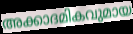
അക്കാദമികവുമായ